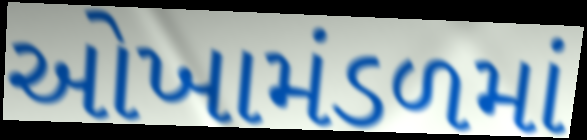
ઓખામંડળમાં